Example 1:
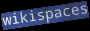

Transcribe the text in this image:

wikispaces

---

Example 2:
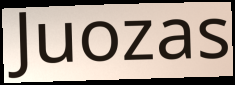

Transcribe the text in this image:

Juozas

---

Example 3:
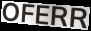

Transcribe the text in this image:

OFERR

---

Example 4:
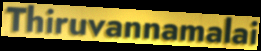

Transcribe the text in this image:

Thiruvannamalai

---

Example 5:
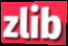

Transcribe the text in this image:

zlib